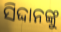
ସିଦ୍ଦାନଙ୍କୁ